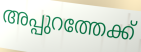
അപ്പുറത്തേക്ക്